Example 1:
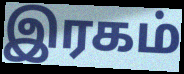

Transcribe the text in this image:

இரகம்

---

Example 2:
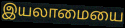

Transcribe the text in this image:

இயலாமையை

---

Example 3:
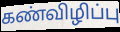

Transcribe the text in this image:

கண்விழிப்பு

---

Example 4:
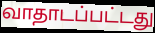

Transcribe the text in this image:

வாதாடப்பட்டது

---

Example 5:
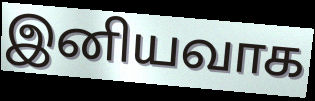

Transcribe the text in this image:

இனியவாக